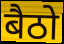
बैठो